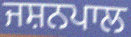
ਜਸ਼ਨਪਾਲ